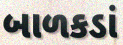
બાળકડાં